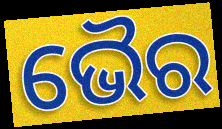
ଭୈର